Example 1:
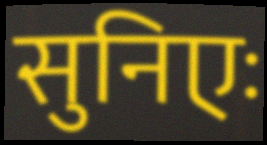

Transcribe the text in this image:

सुनिएः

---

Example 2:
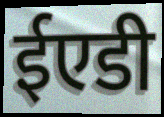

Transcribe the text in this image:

ईएडी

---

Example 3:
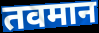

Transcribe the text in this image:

तवमान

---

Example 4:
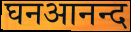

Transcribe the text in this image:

घनआनन्द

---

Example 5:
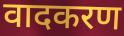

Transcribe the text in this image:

वादकरण